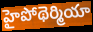
హైపోథెర్మియా